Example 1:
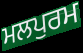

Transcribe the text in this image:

ਮਲਪੁਰਮ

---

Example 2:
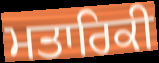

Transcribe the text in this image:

ਮਤਾਰਿਕੀ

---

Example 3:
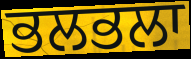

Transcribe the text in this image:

ਭਲਭਲਾ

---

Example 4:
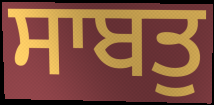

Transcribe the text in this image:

ਸਾਬਤੁ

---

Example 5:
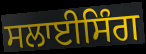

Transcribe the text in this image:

ਸਲਾਈਸਿੰਗ